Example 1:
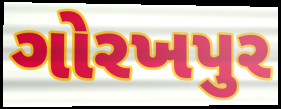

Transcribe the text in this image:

ગોરખપુર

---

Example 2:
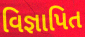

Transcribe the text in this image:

વિજ્ઞાપિત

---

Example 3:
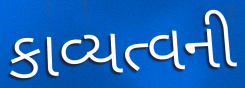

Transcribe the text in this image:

કાવ્યત્વની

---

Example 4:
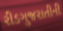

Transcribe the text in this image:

રીડગુજરાતીની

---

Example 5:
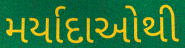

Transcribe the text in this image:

મર્યાદાઓથી